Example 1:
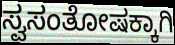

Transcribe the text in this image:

ಸ್ವಸಂತೋಷಕ್ಕಾಗಿ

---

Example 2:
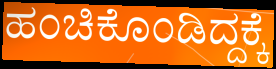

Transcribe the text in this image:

ಹಂಚಿಕೊಂಡಿದ್ದಕ್ಕೆ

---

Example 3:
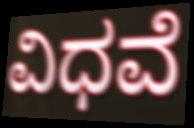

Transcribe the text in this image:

ವಿಧವೆ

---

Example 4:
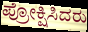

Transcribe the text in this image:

ಪ್ರೋಕ್ಷಿಸಿದರು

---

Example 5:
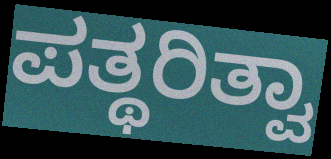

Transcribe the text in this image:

ಪತ್ಥರಿತ್ವಾ